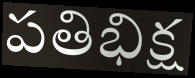
పతిభిక్ష